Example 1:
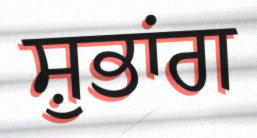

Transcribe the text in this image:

ਸ਼ੁਭਾਂਗ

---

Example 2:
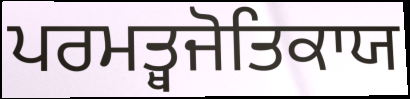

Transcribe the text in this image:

ਪਰਮਤ੍ਥਜੋਤਿਕਾਯ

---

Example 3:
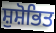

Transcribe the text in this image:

ਸ਼ੁਸ਼ੋਭਿਤ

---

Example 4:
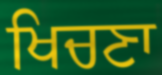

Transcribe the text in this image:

ਖਿਚਣਾ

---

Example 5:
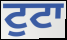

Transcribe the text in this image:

ਟੁਟਾ